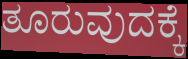
ತೂರುವುದಕ್ಕೆ